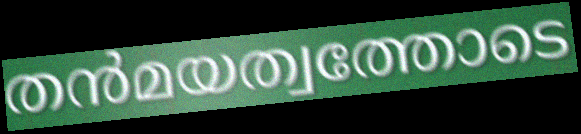
തൻമയത്വത്തോടെ